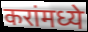
करांमध्ये